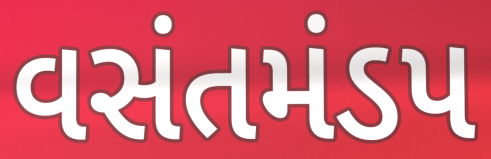
વસંતમંડપ